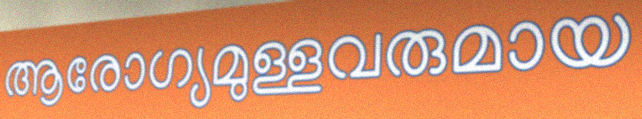
ആരോഗ്യമുള്ളവരുമായ